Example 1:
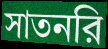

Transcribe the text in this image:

সাতনরি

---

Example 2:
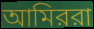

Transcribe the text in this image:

আমিররা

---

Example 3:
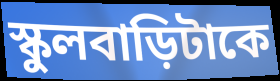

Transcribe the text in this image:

স্কুলবাড়িটাকে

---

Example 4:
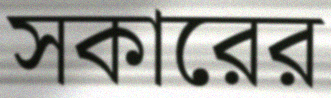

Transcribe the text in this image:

সকারের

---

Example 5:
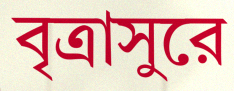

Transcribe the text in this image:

বৃত্রাসুরে